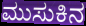
ಮುಸುಕಿನ